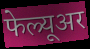
फेल्यूअर